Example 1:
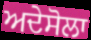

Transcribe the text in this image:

ਅਦੇਸੋਲਾ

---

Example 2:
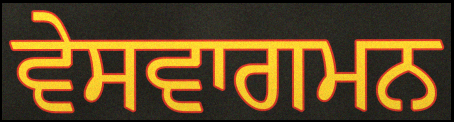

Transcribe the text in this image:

ਵੇਸਵਾਗਮਨ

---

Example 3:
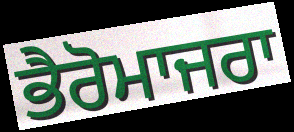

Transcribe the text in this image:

ਭੈਰੋਮਾਜਰਾ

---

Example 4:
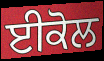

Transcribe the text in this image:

ਈਕੋਲ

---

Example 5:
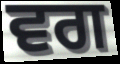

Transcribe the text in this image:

ਵਗ